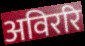
अविररि